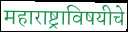
महाराष्ट्राविषयीचे